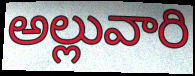
అల్లువారి